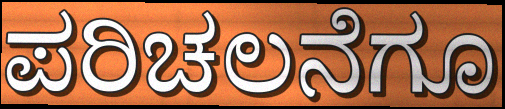
ಪರಿಚಲನೆಗೂ